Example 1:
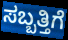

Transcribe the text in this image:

ಸಬ್ಬತ್ತಿಗೆ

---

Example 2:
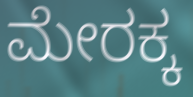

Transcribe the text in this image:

ಮೇರಕ್ಕ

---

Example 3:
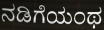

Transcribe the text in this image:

ನಡಿಗೆಯಂಥ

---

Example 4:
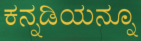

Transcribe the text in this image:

ಕನ್ನಡಿಯನ್ನೂ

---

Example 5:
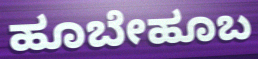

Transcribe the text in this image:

ಹೂಬೇಹೂಬ